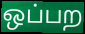
ஒப்பற